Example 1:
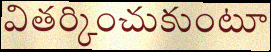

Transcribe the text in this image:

వితర్కించుకుంటూ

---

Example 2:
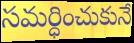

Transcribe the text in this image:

సమర్ధించుకునే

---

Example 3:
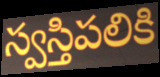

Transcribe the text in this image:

స్వస్తిపలికి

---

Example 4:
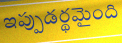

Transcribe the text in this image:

ఇప్పుడర్థమైంది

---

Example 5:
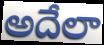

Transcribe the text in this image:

అదేలా